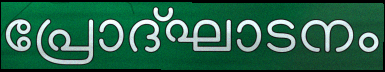
പ്രോദ്ഘാടനം